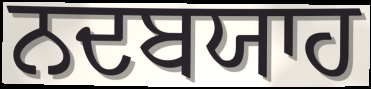
ਨਦਬਯਾਹ